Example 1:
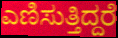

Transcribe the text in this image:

ಎಣಿಸುತ್ತಿದ್ದರೆ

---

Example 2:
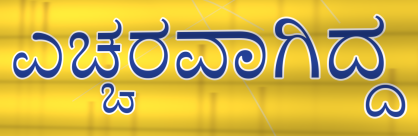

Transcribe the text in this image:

ಎಚ್ಚರವಾಗಿದ್ದ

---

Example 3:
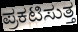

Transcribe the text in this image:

ಪ್ರಕಟಿಸುತ್ತ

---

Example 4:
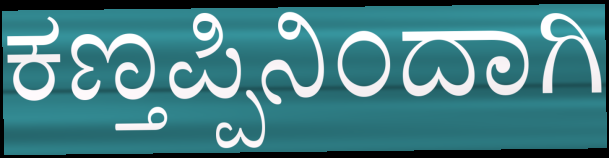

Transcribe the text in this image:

ಕಣ್ತಪ್ಪಿನಿಂದಾಗಿ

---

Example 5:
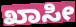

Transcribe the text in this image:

ಖಾಸೀ